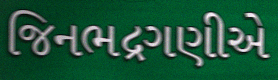
જિનભદ્રગણીએ